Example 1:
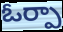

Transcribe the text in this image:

ఓర్పా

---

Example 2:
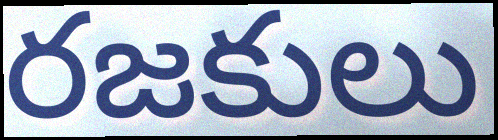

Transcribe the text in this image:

రజకులు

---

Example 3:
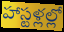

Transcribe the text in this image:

హాస్టళ్లల్లో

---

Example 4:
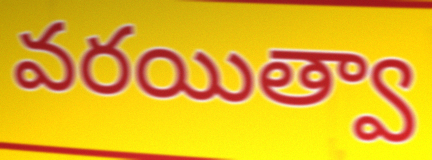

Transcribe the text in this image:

వరయిత్వా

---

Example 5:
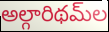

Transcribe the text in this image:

అల్గారిథమ్‌ల